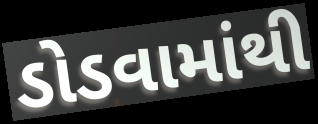
ડોડવામાંથી